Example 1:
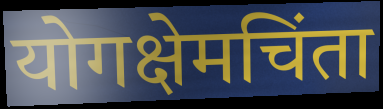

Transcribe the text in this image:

योगक्षेमचिंता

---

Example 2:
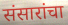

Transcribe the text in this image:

संसारांचा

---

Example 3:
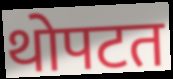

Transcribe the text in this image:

थोपटत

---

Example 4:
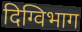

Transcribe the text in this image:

दिग्विभाग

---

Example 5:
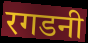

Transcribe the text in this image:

रगडनी